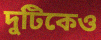
দুটিকেও